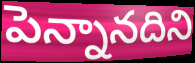
పెన్నానదిని